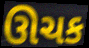
ઊચક